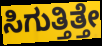
ಸಿಗುತ್ತಿತ್ತೇ